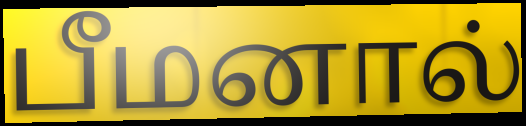
பீமனால்